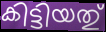
കിട്ടിയതു്